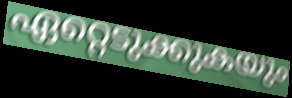
ഏറ്റെടുക്കുകയും